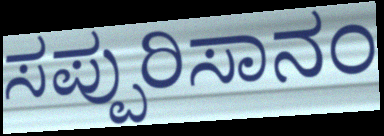
ಸಪ್ಪುರಿಸಾನಂ